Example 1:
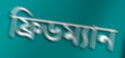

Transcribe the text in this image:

ফ্রিডম্যান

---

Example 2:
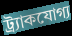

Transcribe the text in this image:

ট্র্যাকযোগ্য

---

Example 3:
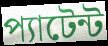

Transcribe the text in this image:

প্যাটেন্ট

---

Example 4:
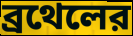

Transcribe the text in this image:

ব্রথেলের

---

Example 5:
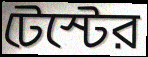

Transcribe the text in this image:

টেস্টের